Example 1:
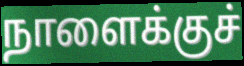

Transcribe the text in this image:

நாளைக்குச்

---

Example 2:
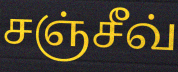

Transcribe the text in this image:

சஞ்சீவ்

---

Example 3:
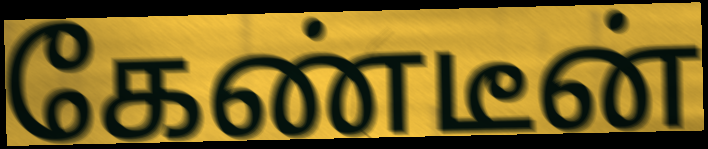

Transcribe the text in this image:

கேண்டீன்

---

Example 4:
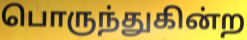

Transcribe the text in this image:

பொருந்துகின்ற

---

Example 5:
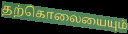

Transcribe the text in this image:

தற்கொலையையும்